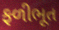
ફળીભૂત